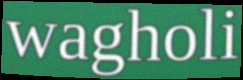
wagholi